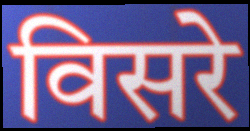
विसरे